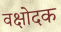
वक्षोदक